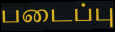
படைப்பு